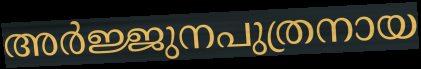
അർജ്ജുനപുത്രനായ